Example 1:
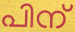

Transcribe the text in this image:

പിന്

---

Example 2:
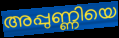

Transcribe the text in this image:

അപ്പുണ്ണിയെ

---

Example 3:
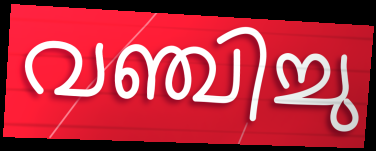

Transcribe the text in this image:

വഞ്ചിച്ചു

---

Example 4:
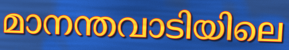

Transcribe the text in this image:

മാനന്തവാടിയിലെ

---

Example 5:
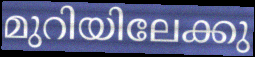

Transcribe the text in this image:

മുറിയിലേക്കു